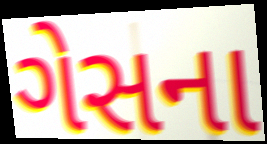
ગેસના